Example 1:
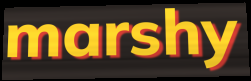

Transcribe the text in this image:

marshy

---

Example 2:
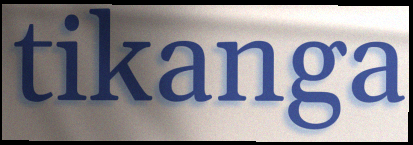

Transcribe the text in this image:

tikanga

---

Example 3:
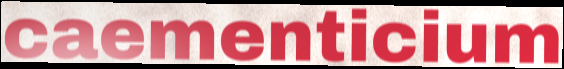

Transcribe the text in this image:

caementicium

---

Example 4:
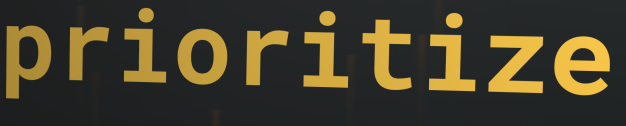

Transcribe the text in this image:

prioritize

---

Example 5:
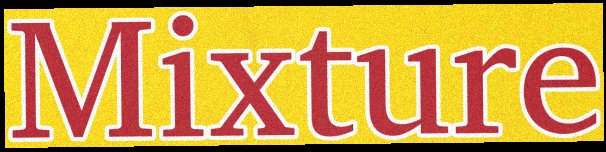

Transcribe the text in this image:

Mixture